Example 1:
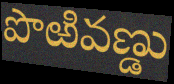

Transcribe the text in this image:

పొఱివణ్డు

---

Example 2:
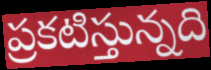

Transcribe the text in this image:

ప్రకటిస్తున్నది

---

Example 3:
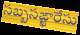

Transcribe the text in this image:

సబ్బసఙ్ఖారేసు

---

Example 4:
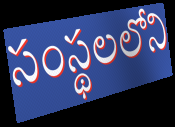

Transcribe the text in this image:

సంస్థలలోని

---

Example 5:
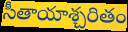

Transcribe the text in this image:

సీతాయాశ్చరితం